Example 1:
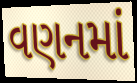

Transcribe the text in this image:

વણનમાં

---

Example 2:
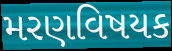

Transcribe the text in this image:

મરણવિષયક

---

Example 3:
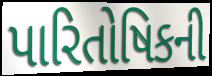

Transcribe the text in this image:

પારિતોષિકની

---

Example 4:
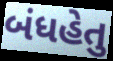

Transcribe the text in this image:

બંધહેતુ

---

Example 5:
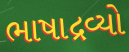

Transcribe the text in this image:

ભાષાદ્રવ્યો